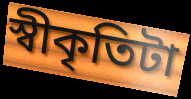
স্বীকৃতিটা